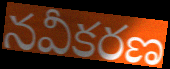
నవీకరణ